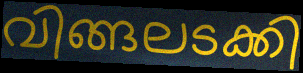
വിങ്ങലടക്കി